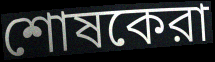
শোষকেরা